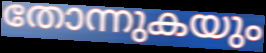
തോന്നുകയും